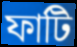
ফাটি